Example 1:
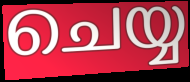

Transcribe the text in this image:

ചെയ്യ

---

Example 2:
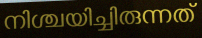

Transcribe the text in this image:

നിശ്ചയിച്ചിരുന്നത്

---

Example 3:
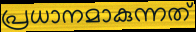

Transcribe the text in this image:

പ്രധാനമാകുന്നത്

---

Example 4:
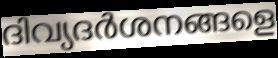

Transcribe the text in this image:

ദിവ്യദർശനങ്ങളെ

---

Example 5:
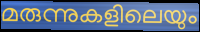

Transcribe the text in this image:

മരുന്നുകളിലെയും